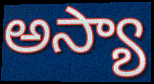
అస్యా